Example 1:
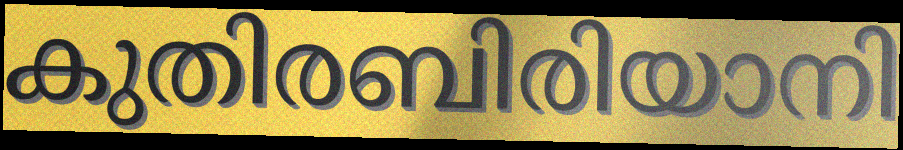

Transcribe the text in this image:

കുതിരബിരിയാനി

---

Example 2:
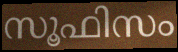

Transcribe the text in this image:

സൂഫിസം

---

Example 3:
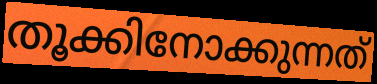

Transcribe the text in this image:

തൂക്കിനോക്കുന്നത്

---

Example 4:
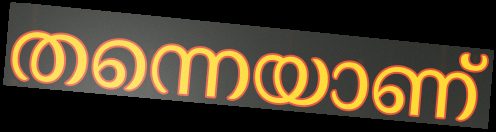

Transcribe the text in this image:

തന്നെയാണ്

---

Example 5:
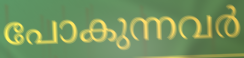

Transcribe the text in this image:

പോകുന്നവർ